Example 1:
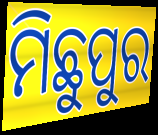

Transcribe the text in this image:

ମିଛୁପୁର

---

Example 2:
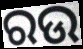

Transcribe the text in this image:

ରଉ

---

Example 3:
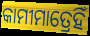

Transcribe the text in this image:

କାମୀମାତ୍ରେହିଁ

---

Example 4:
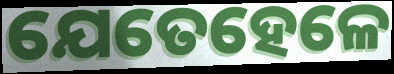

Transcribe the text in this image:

ଯେତେହେଳେ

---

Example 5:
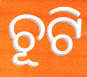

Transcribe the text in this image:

ଚୂଟି